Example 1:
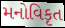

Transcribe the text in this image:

મનોવિકૃત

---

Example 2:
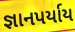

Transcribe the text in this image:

જ્ઞાનપર્યાય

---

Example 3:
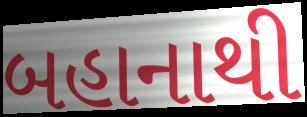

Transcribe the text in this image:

બહાનાથી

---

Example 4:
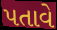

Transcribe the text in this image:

પતાવે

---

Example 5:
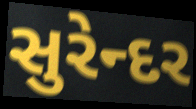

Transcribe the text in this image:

સુરેન્દર